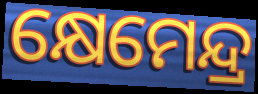
କ୍ଷେମେନ୍ଦ୍ର